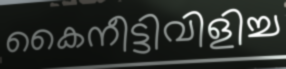
കൈനീട്ടിവിളിച്ച